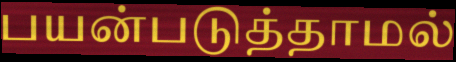
பயன்படுத்தாமல்